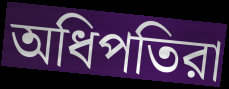
অধিপতিরা